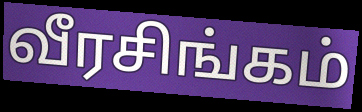
வீரசிங்கம்